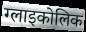
ग्लाइकोलिक